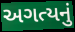
અગત્યનું